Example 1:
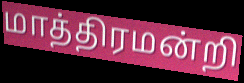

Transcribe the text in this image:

மாத்திரமன்றி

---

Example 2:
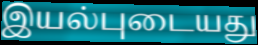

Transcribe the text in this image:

இயல்புடையது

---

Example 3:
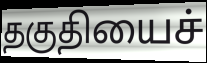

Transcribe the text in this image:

தகுதியைச்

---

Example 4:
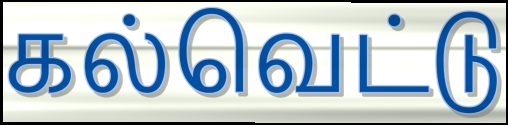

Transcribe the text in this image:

கல்வெட்டு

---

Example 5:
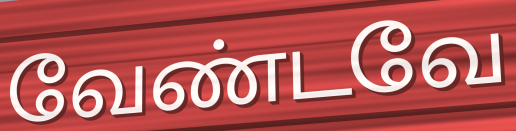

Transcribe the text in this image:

வேண்டவே